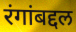
रंगांबद्दल